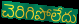
చెరిగిపోలేదు